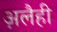
अ़लैही